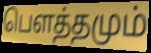
பௌத்தமும்